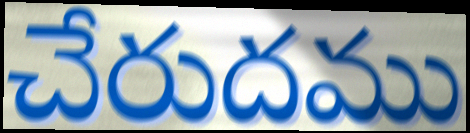
చేరుదము